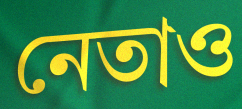
নেতাও